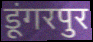
डूंगरपुर